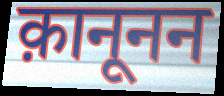
क़ानूनन